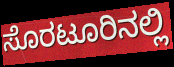
ಸೊರಟೂರಿನಲ್ಲಿ